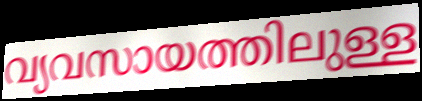
വ്യവസായത്തിലുള്ള